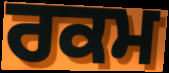
ਰਕਮ